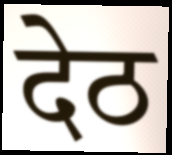
देठ